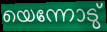
യെന്നോടു്